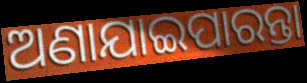
ଅଣାଯାଇପାରନ୍ତା